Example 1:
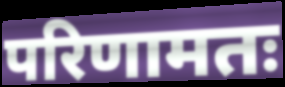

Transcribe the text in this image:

परिणामतः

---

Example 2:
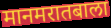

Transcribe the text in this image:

मानमरातबाला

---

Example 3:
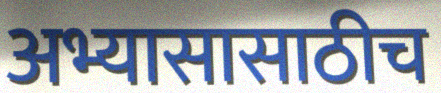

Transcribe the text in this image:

अभ्यासासाठीच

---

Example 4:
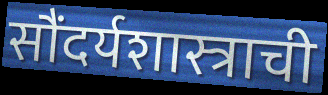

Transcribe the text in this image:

सौंदर्यशास्त्राची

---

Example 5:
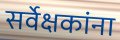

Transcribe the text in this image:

सर्वेक्षकांना